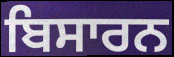
ਬਿਸਾਰਨ